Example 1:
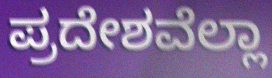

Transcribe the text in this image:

ಪ್ರದೇಶವೆಲ್ಲಾ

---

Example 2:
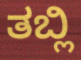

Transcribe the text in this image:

ತಬ್ಲಿ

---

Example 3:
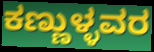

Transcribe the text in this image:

ಕಣ್ಣುಳ್ಳವರ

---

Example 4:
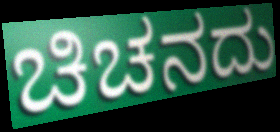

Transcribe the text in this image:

ಚಿಚನದು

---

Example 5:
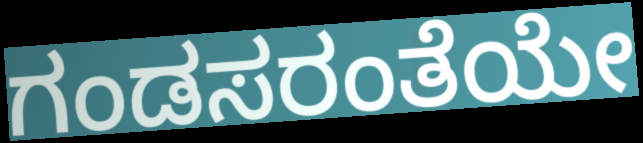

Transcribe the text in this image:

ಗಂಡಸರಂತೆಯೇ